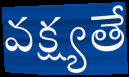
వక్ష్యతే